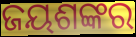
ଜୟଶଙ୍କର